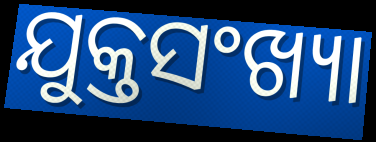
ଯୁକ୍ତସଂଖ୍ୟା